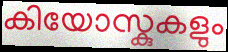
കിയോസ്കുകളും